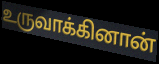
உருவாக்கினான்